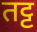
तट्ट